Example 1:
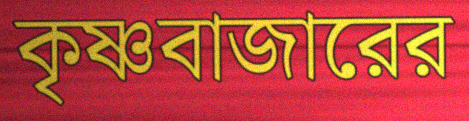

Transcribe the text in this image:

কৃষ্ণবাজারের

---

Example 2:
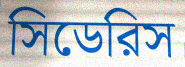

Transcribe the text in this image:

সিডেরিস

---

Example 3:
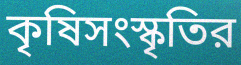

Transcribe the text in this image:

কৃষিসংস্কৃতির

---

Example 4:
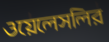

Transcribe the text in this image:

ওয়েলেসলির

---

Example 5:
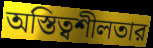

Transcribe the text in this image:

অস্তিত্বশীলতার